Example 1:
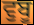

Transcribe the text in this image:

ਵੁਬੂ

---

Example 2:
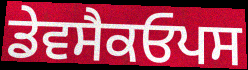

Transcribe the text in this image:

ਡੇਵਸੈਕਓਪਸ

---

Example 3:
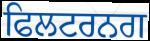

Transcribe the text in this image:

ਫਿਲਟਰਨਗ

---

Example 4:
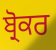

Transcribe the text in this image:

ਬ੍ਰੋਕਰ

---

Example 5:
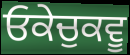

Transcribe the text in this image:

ਓਕੇਚੁਕਵੂ